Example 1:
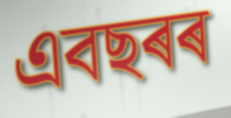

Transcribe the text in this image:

এবছৰৰ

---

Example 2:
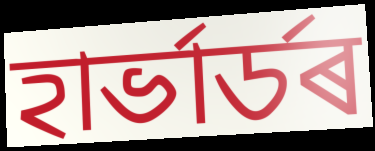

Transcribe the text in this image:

হাৰ্ভাৰ্ডৰ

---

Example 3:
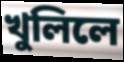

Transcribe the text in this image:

খুলিলে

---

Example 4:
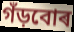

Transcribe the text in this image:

গঁড়বোৰ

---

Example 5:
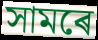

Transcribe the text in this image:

সামৰে